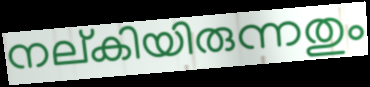
നല്കിയിരുന്നതും